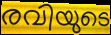
രവിയുടെ